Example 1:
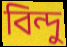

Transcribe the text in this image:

বিন্দু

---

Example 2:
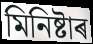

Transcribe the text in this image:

মিনিষ্টাৰ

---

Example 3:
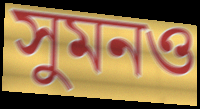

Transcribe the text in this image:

সুমনও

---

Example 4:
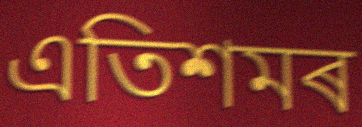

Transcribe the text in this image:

এতিশমৰ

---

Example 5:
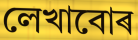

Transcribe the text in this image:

লেখাবোৰ